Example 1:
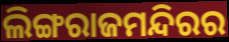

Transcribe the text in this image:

ଲିଙ୍ଗରାଜମନ୍ଦିରର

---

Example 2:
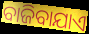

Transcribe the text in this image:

ବାଜିବାଯାଏ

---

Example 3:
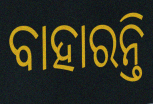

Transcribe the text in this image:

ବାହାରନ୍ତି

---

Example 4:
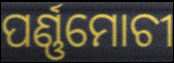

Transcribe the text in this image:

ପର୍ଣ୍ଣମୋଚୀ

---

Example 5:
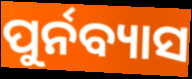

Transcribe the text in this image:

ପୁର୍ନବ୍ୟାସ